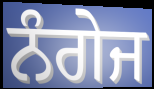
ਨੰਗੇਜ